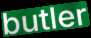
butler